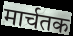
मार्चतक